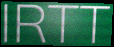
IRTT